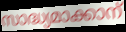
സാദ്ധ്യമാക്കാന്